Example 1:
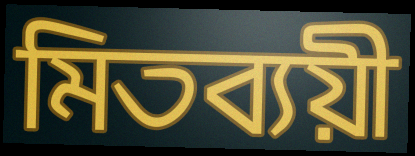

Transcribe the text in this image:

মিতব্যয়ী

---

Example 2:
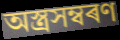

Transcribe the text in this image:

অস্ত্ৰসম্বৰণ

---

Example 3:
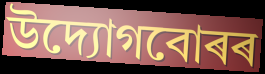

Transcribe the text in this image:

উদ্যোগবোৰৰ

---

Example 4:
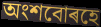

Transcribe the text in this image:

অংশবোৰহে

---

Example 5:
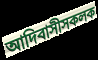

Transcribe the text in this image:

আদিবাসীসকলক